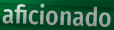
aficionado